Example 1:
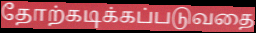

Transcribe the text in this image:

தோற்கடிக்கப்படுவதை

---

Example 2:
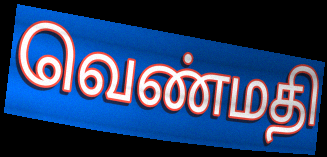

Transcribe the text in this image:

வெண்மதி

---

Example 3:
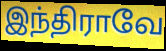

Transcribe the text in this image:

இந்திராவே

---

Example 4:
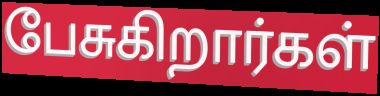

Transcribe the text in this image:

பேசுகிறார்கள்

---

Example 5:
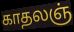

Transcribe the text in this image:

காதலஞ்